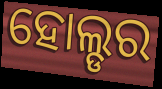
ହୋଲ୍ଡର